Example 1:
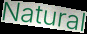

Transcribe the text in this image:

Natural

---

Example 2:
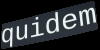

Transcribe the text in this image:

quidem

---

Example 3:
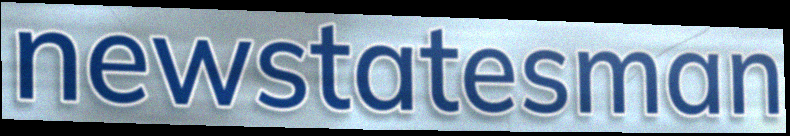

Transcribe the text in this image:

newstatesman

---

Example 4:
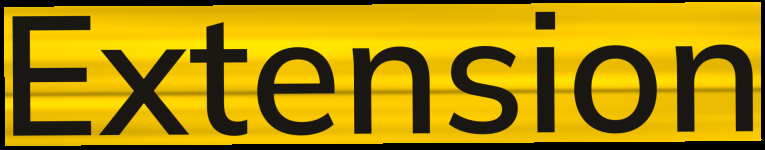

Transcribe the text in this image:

Extension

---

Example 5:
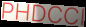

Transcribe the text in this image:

PHDCCI